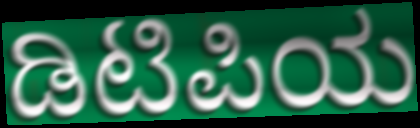
ಡಿಟಿಪಿಯ